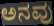
ಅನವು